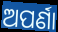
ଅପର୍ଣା